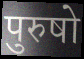
पुरुषो